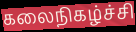
கலைநிகழ்ச்சி